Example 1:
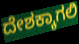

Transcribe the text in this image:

ದೇಶಕ್ಕಾಗಲಿ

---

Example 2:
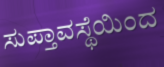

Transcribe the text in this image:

ಸುಪ್ತಾವಸ್ಥೆಯಿಂದ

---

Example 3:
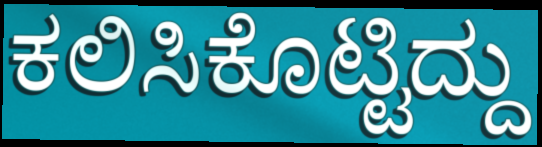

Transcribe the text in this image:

ಕಲಿಸಿಕೊಟ್ಟಿದ್ದು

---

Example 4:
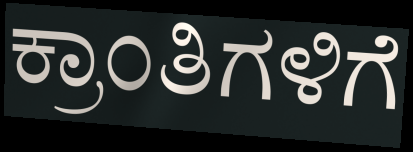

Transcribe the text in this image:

ಕ್ರಾಂತಿಗಳಿಗೆ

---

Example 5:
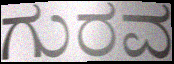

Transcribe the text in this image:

ಗುರವ